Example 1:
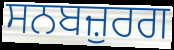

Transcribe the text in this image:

ਸਨਬਜ਼ੁਰਗ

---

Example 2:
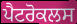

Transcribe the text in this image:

ਪੈਟਰੋਕਲਸ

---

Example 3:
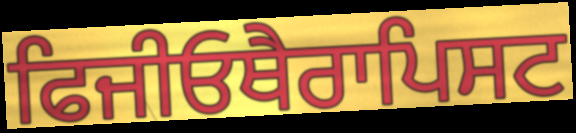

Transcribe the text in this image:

ਫਿਜੀਓਥੈਰਾਪਿਸਟ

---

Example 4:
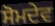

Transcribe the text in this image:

ਸੋਮਦੇਵ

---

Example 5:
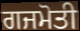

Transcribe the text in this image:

ਗਜਮੋਤੀ